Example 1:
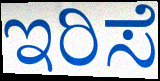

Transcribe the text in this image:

ಇರಿಸೆ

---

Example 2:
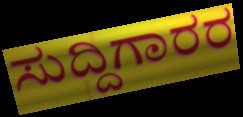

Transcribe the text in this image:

ಸುದ್ದಿಗಾರರ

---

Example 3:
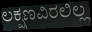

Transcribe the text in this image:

ಲಕ್ಷಣವಿರಲಿಲ್ಲ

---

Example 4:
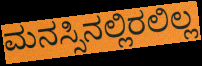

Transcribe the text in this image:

ಮನಸ್ಸಿನಲ್ಲಿರಲಿಲ್ಲ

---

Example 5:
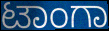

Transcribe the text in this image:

ಟಾಂಗಾ